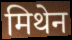
मिथेन